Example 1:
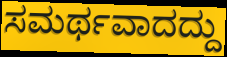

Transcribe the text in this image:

ಸಮರ್ಥವಾದದ್ದು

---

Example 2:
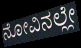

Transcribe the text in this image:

ನೋವಿನಲ್ಲೇ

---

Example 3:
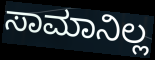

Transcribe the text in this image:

ಸಾಮಾನಿಲ್ಲ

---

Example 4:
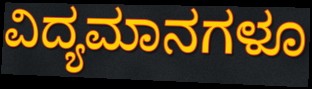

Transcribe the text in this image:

ವಿದ್ಯಮಾನಗಳೂ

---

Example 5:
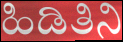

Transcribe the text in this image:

ಹಿಡಿತಿನಿ